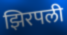
झिरपली